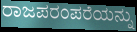
ರಾಜಪರಂಪರೆಯನ್ನು